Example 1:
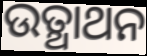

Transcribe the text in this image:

ଉତ୍ଥାଥନ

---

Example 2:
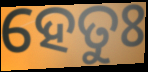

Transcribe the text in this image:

ହେତୁଃ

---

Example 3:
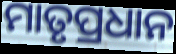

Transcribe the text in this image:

ମାତୃପ୍ରଧାନ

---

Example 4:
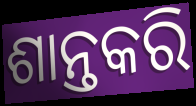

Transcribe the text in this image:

ଶାନ୍ତକରି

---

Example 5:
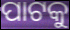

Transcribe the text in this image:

ପାଟକୁ